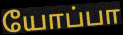
யோப்பா